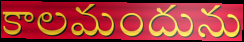
కాలమందును